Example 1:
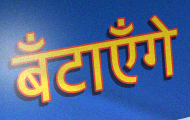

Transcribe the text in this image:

बँटाएँगे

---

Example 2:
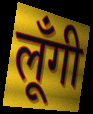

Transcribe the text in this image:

लूँगी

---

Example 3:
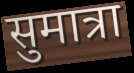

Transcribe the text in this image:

सुमात्रा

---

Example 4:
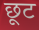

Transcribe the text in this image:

छूट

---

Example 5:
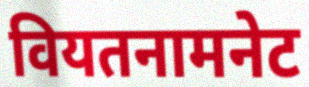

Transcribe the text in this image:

वियतनामनेट